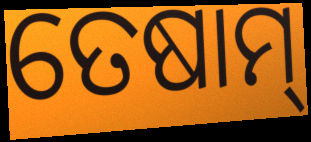
ତେଷାମ୍